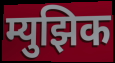
म्युझिक